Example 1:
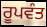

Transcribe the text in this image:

ਰੂਪਵੰਤ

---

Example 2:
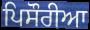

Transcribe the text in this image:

ਪਿਸੌਰੀਆ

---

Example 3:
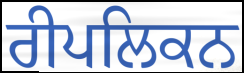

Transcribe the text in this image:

ਰੀਪਲਿਕਨ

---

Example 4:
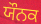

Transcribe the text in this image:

ਯੌਨਕ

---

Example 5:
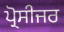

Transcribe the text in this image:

ਪ੍ਰੋਸੀਜਰ